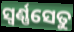
ସ୍ଵର୍ଣ୍ଣସେତୁ